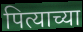
पित्याच्या